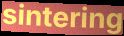
sintering